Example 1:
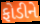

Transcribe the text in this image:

ફોડીને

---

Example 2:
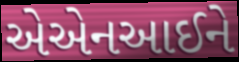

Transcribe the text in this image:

એએનઆઈને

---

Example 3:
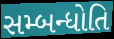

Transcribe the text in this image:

સમ્બન્ધોતિ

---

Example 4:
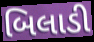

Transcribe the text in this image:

બિલાડી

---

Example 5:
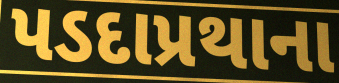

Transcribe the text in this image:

પડદાપ્રથાના